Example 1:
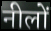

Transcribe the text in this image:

नीलों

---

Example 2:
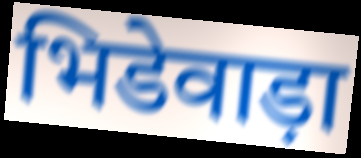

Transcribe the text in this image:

भिडेवाड़ा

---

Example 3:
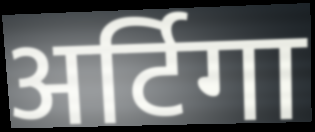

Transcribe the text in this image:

अर्टिगा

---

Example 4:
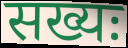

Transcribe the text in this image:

सख्यः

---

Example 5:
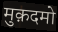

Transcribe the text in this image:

मुक़दमो